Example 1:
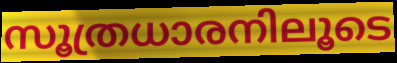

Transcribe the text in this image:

സൂത്രധാരനിലൂടെ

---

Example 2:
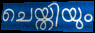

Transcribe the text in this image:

ചെയ്തിയും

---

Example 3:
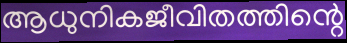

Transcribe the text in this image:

ആധുനികജീവിതത്തിന്റെ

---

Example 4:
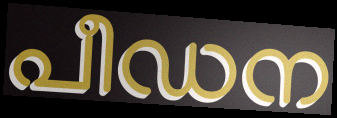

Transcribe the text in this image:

പീഡന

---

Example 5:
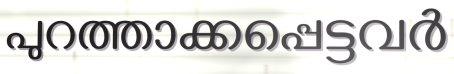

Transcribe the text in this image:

പുറത്താക്കപ്പെട്ടവർ